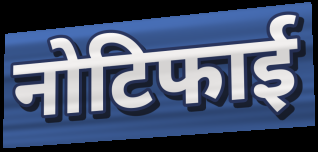
नोटिफाई